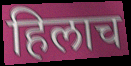
हिलाच